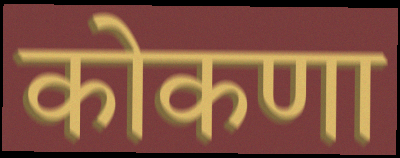
कोकणा